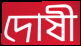
দোষী